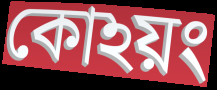
কোঽয়ং